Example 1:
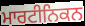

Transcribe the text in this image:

ਮਾਰਟੀਨਿਕਨ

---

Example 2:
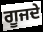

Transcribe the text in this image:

ਗੂਜਦੇ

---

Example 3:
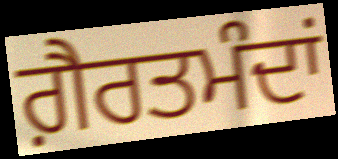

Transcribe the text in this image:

ਗ਼ੈਰਤਮੰਦਾਂ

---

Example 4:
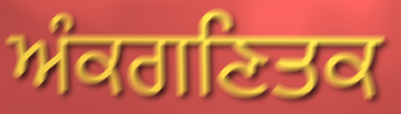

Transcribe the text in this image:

ਅੰਕਗਣਿਤਕ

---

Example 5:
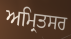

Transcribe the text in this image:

ਅਮ੍ਰਿਤਸਰ